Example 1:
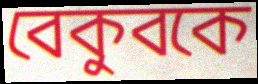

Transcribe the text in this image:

বেকুবকে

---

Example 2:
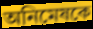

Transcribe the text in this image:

অনিমেষকে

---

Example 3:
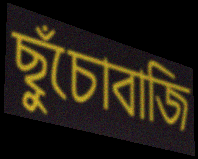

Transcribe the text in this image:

ছুঁচোবাজি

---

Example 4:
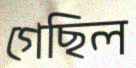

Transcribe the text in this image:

গেছিল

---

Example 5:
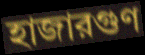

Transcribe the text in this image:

হাজারগুণ